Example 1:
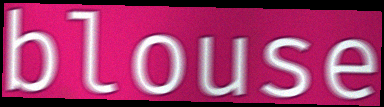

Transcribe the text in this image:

blouse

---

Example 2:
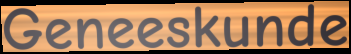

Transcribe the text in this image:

Geneeskunde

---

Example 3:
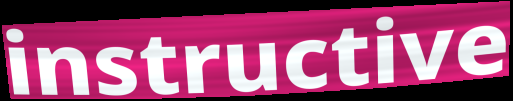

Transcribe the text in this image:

instructive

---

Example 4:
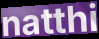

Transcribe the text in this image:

natthi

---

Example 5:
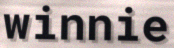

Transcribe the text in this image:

winnie